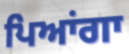
ਪਿਆਂਗਾ